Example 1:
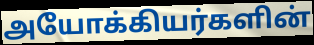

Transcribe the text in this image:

அயோக்கியர்களின்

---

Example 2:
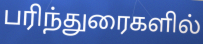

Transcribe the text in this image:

பரிந்துரைகளில்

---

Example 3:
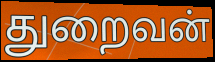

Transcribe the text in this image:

துறைவன்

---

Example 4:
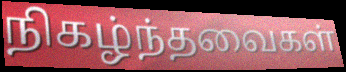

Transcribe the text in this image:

நிகழ்ந்தவைகள்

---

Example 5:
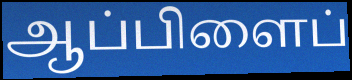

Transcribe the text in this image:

ஆப்பிளைப்